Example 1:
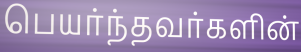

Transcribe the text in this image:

பெயர்ந்தவர்களின்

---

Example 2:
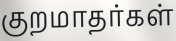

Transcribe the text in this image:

குறமாதர்கள்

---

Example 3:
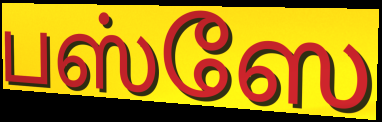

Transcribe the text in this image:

பஸ்ஸே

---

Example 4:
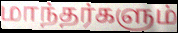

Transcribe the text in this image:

மாந்தர்களும்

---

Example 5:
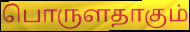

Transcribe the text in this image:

பொருளதாகும்